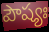
పౌష్యః